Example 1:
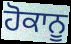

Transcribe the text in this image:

ਹੋਕਾਨੂ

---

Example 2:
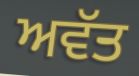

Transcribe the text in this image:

ਅਵੱਤ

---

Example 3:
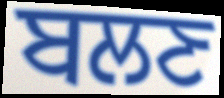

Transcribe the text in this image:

ਬਲਣ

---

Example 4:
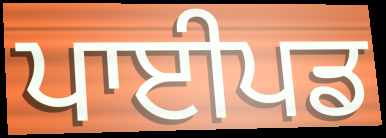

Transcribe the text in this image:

ਪਾਈਪਡ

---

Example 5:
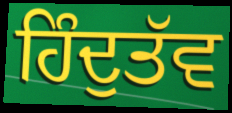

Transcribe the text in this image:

ਹਿੰਦੁਤੱਵ